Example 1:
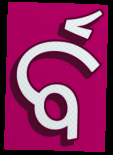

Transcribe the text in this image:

ର୍ବ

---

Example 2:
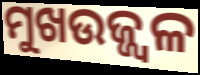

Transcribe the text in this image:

ମୁଖଉଜ୍ଜ୍ୱଳ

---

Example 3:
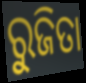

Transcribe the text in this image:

ରୁଜିତା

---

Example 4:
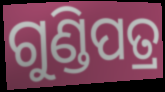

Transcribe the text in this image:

ଗୁଣ୍ଡିପତ୍ର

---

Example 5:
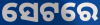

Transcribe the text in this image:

ସେଟରେ